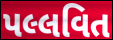
પલ્લવિત